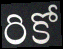
రికో